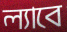
ল্যাবে